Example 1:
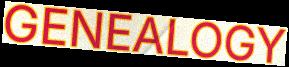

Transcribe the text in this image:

GENEALOGY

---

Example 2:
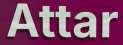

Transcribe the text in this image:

Attar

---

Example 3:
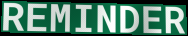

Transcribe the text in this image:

REMINDER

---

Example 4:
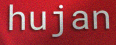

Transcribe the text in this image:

hujan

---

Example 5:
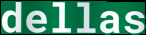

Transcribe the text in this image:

dellas